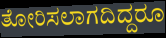
ತೋರಿಸಲಾಗದಿದ್ದರೂ